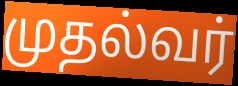
முதல்வர்